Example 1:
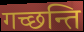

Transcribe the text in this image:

गच्छन्ति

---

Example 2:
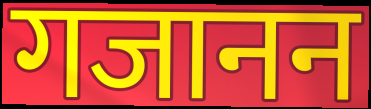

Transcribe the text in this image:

गजानन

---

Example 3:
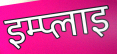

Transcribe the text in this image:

इम्प्लाइ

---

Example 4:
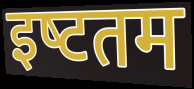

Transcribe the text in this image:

इष्‍टतम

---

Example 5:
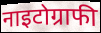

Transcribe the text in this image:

नाइटोग्राफी